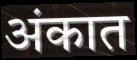
अंकात